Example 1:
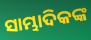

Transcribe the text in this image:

ସାମ୍ଭାଦିକଙ୍କ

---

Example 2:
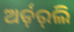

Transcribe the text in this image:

ଅର୍ଡ଼ର୍‌ଲି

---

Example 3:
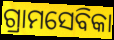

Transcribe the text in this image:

ଗ୍ରାମସେବିକା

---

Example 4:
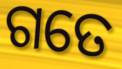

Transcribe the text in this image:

ଗତେ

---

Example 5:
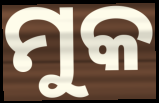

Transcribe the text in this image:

ମୁକ